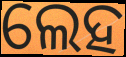
ଲେହ